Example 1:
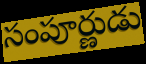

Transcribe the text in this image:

సంపూర్ణుడు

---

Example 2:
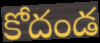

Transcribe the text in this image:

కోదండ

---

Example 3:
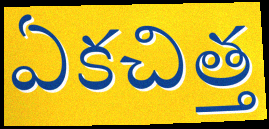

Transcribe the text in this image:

ఏకచిత్త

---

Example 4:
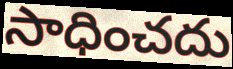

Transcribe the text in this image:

సాధించదు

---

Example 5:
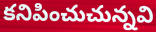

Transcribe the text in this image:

కనిపించుచున్నవి